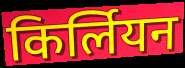
किर्लियन